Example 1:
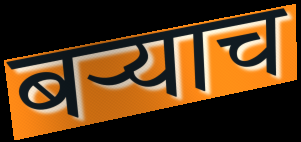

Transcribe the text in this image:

बऱ्याच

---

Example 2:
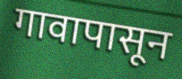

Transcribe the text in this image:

गावापासून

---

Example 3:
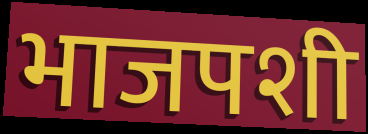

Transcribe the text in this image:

भाजपशी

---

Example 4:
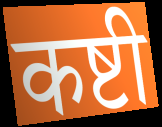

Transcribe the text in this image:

कष्टी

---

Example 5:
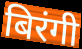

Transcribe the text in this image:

बिरंगी